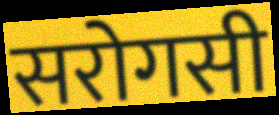
सरोगसी